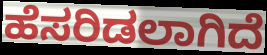
ಹೆಸರಿಡಲಾಗಿದೆ